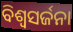
ବିଶ୍ଵସର୍ଜନା